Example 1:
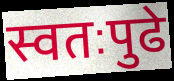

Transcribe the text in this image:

स्वतःपुढे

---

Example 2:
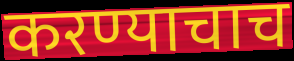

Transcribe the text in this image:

करण्याचाच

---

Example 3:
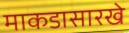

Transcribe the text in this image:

माकडासारखे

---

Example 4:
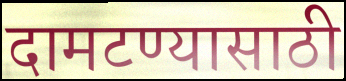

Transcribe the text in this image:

दामटण्यासाठी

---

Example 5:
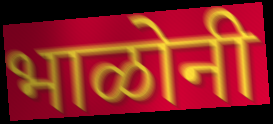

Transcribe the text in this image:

भाळोनी